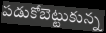
పడుకోబెట్టుకున్న